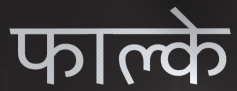
फाल्के